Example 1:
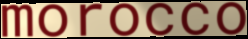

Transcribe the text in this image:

morocco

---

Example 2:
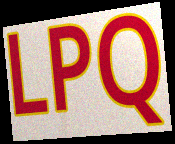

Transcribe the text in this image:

LPQ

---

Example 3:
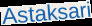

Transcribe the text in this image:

Astaksari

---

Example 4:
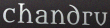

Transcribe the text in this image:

chandru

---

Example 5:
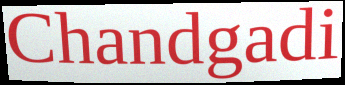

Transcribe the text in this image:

Chandgadi